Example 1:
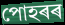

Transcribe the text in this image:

পোহৰৰ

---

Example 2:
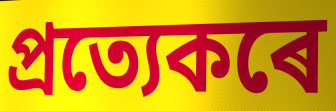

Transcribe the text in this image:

প্ৰত্যেকৰে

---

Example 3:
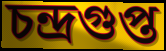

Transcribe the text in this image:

চন্দ্ৰগুপ্ত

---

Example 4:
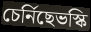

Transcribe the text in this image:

চেৰ্নিছেভস্কি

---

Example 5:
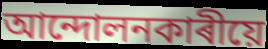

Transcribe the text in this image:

আন্দোলনকাৰীয়ে